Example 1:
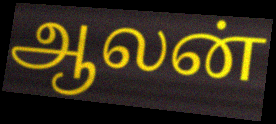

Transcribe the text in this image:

ஆலன்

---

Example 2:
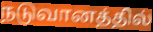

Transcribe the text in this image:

நடுவானத்தில்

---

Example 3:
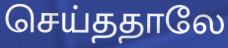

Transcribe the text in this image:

செய்ததாலே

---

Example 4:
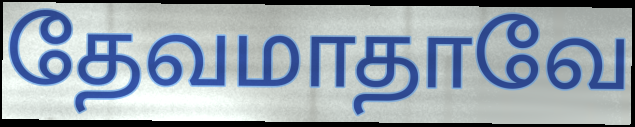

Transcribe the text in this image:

தேவமாதாவே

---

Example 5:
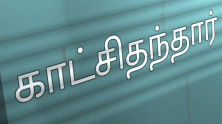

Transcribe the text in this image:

காட்சிதந்தார்